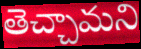
తెచ్చామని